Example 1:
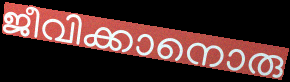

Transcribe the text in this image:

ജീവിക്കാനൊരു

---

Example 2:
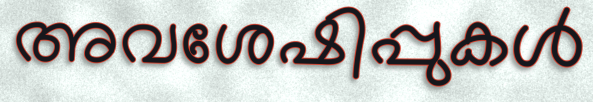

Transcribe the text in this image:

അവശേഷിപ്പുകൾ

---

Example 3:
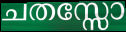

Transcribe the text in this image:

ചതസ്സോ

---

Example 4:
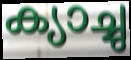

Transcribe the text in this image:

ക്യാച്ചു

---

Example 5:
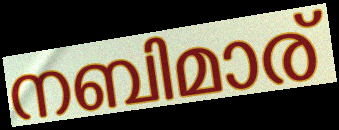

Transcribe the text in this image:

നബിമാര്